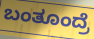
ಬಂತೂಂದ್ರೆ